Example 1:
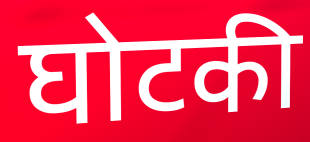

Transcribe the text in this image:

घोटकी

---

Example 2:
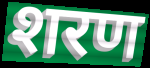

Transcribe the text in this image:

शरण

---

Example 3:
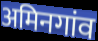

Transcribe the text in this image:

अमिनगांव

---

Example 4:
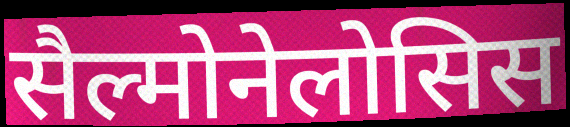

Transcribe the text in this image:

सैल्मोनेलोसिस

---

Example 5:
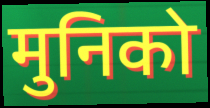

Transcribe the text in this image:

मुनिको